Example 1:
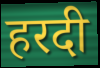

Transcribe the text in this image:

हरदी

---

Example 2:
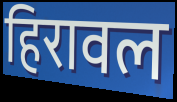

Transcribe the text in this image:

हिरावल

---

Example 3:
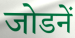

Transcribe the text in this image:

जोडनें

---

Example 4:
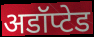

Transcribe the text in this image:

अडॉप्टेड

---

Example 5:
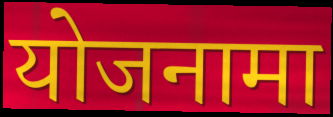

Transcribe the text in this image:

योजनामा